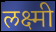
लक्ष्मी